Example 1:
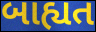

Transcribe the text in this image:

બાહ્યત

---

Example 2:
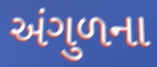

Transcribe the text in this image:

અંગુળના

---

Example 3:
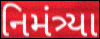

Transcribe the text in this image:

નિમંત્ર્યા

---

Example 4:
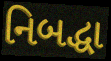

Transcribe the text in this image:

નિબદ્ધા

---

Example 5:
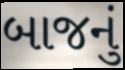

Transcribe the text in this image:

બાજનું